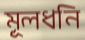
মূলধনি